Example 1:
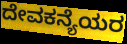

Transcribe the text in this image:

ದೇವಕನ್ಯೆಯರ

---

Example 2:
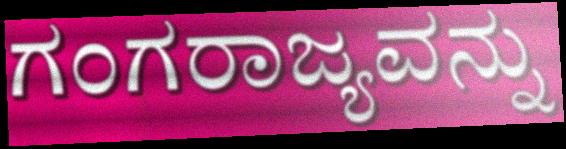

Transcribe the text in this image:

ಗಂಗರಾಜ್ಯವನ್ನು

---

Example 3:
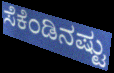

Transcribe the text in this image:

ಸೆಕೆಂಡಿನಷ್ಟು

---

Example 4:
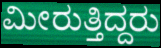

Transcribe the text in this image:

ಮೀರುತ್ತಿದ್ದರು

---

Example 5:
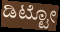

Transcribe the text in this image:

ಡಿಟ್ಟೋ